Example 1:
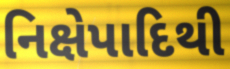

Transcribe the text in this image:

નિક્ષેપાદિથી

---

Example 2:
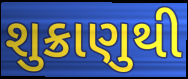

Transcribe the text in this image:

શુક્રાણુથી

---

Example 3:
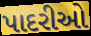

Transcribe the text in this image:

પાદરીઓ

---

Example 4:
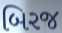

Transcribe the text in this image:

બિરજ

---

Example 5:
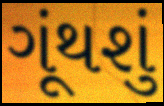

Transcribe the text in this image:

ગૂંથશું